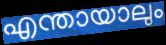
എന്തായാലും